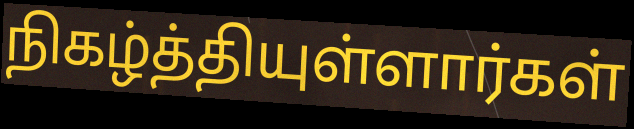
நிகழ்த்தியுள்ளார்கள்